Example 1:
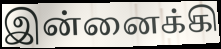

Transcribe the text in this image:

இன்னைக்கி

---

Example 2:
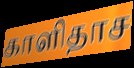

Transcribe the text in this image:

காளிதாச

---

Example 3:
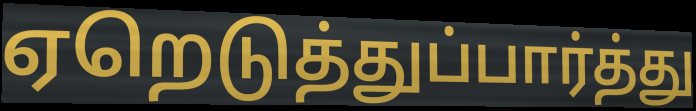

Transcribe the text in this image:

ஏறெடுத்துப்பார்த்து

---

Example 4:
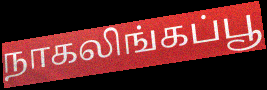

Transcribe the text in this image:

நாகலிங்கப்பூ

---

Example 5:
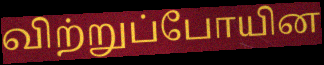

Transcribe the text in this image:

விற்றுப்போயின